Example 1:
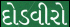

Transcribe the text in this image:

દોડવીરો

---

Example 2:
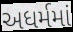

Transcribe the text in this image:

અધર્મમાં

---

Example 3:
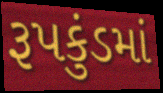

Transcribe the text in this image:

રૂપકુંડમાં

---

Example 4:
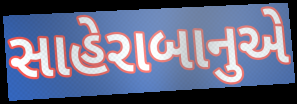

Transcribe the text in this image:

સાહેરાબાનુએ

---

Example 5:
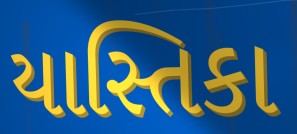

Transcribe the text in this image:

યાસ્તિકા